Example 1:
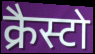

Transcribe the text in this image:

क्रैस्टो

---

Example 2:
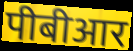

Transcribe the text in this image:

पीबीआर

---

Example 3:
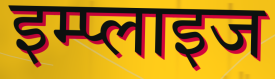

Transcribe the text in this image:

इम्प्लाइज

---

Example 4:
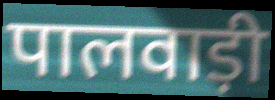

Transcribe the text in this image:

पालवाड़ी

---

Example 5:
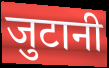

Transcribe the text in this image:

जुटानी